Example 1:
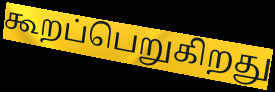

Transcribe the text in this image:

கூறப்பெறுகிறது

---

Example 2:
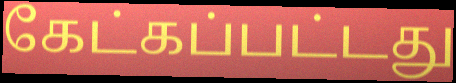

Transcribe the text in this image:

கேட்கப்பட்டது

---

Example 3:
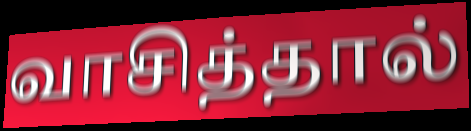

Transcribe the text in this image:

வாசித்தால்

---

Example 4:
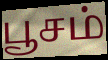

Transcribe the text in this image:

பூசம்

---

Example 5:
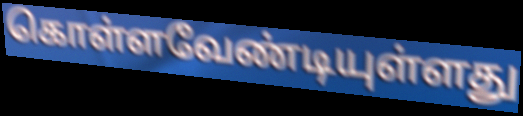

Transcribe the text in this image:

கொள்ளவேண்டியுள்ளது